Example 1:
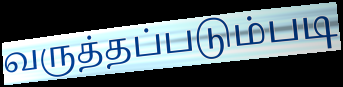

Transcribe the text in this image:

வருத்தப்படும்படி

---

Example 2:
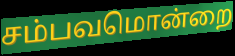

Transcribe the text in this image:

சம்பவமொன்றை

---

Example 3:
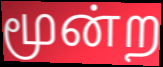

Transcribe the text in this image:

மூன்ற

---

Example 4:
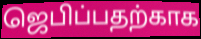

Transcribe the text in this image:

ஜெபிப்பதற்காக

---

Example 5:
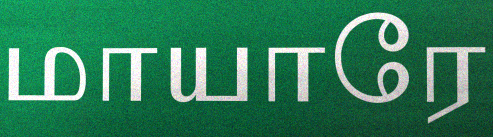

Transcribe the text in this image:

மாயாரே